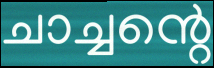
ചാച്ചന്റെ